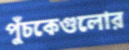
পুঁচকেগুলোর